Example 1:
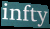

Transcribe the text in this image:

infty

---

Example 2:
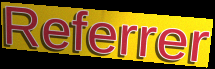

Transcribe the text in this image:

Referrer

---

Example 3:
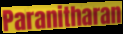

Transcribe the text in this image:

Paranitharan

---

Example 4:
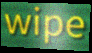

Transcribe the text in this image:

wipe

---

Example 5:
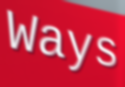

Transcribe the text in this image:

Ways